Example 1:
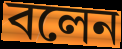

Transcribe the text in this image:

বলেন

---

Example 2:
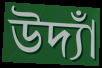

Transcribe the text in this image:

উদ্যাঁ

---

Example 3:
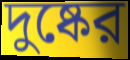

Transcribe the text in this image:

দুষ্কের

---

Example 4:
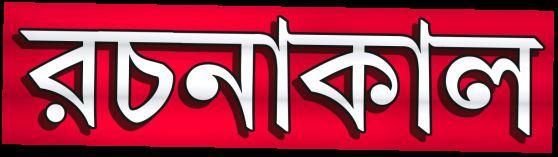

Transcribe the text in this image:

রচনাকাল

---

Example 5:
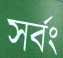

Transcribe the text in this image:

সর্বং